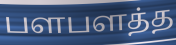
பளபளத்த